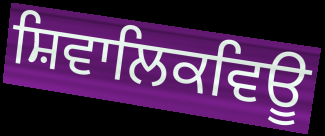
ਸ਼ਿਵਾਲਿਕਵਿਊ